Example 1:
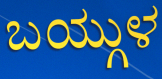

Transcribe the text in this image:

ಬಯ್ಗುಳ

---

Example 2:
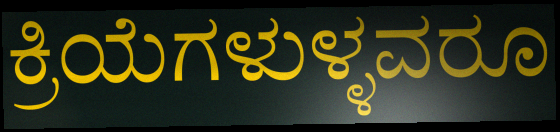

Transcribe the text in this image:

ಕ್ರಿಯೆಗಳುಳ್ಳವರೂ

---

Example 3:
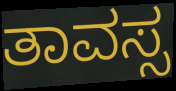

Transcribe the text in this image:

ತಾವಸ್ಸ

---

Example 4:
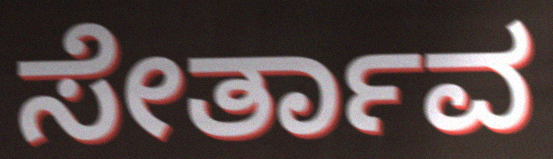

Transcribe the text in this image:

ಸೇರ್ತಾವ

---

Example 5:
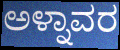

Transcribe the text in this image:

ಅಳ್ನಾವರ